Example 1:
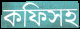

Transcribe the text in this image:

কফিসহ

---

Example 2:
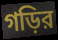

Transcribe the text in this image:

গড়ির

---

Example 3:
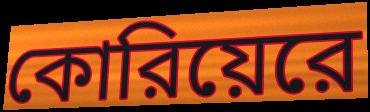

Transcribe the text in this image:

কোরিয়েরে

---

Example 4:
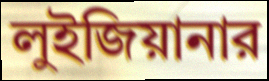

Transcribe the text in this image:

লুইজিয়ানার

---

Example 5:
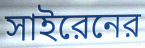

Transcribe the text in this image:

সাইরেনের